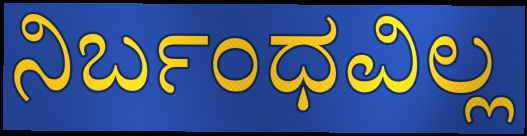
ನಿರ್ಬಂಧವಿಲ್ಲ